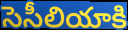
సెసీలియాకి